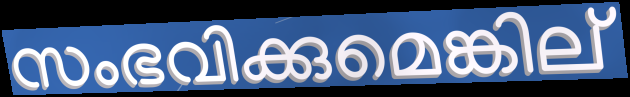
സംഭവിക്കുമെങ്കില്